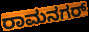
ರಾಮನಗರ್